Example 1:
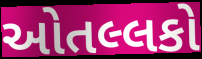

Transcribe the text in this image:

ઓતલ્લકો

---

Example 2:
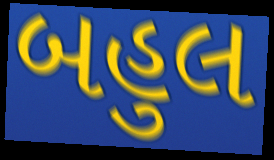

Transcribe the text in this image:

બહુલ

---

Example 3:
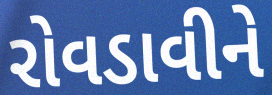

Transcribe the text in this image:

રોવડાવીને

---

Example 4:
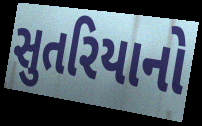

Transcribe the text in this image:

સુતરિયાનો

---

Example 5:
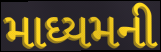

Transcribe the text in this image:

માઘ્યમની